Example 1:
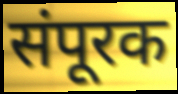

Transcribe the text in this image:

संपूरक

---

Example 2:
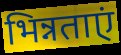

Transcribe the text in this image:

भिन्नताएं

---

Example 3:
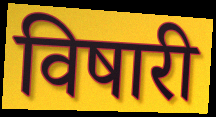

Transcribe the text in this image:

विषारी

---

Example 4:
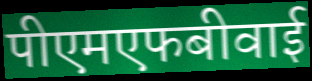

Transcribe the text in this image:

पीएमएफबीवाई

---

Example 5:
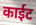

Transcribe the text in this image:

काईट